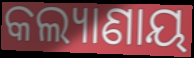
କଲ୍ୟାଣାୟ